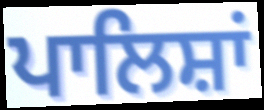
ਪਾਲਿਸ਼ਾਂ